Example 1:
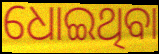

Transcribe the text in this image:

ଧୋଇଥିବା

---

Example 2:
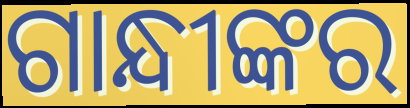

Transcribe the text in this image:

ଗାନ୍ଧୀଙ୍କର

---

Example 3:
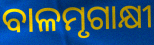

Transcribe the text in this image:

ବାଳମୃଗାକ୍ଷୀ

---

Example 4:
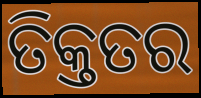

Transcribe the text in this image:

ତିକ୍ତତର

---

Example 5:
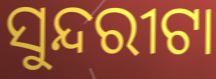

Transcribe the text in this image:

ସୁନ୍ଦରୀଟା